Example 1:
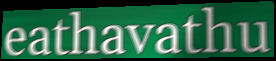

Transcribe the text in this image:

eathavathu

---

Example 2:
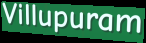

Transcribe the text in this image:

Villupuram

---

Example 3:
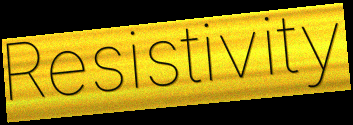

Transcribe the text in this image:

Resistivity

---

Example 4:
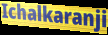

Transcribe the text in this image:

Ichalkaranji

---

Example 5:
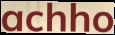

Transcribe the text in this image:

achho